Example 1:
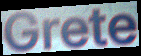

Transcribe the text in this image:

Grete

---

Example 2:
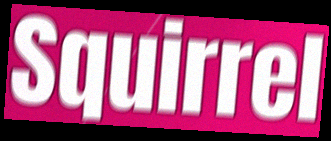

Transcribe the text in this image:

Squirrel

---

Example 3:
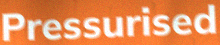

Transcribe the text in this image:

Pressurised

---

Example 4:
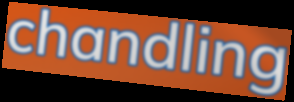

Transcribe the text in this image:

chandling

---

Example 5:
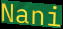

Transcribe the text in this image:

Nani